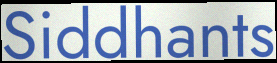
Siddhants